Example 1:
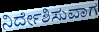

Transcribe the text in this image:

ನಿರ್ದೇಶಿಸುವಾಗ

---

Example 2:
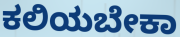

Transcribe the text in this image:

ಕಲಿಯಬೇಕಾ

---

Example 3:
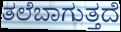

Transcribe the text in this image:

ತಲೆಬಾಗುತ್ತದೆ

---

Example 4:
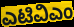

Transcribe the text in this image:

ಎಟಿವಿಎಂ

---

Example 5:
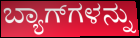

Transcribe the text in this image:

ಬ್ಯಾಗ್‌ಗಳನ್ನು